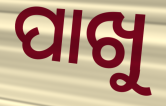
ପାଖୁ